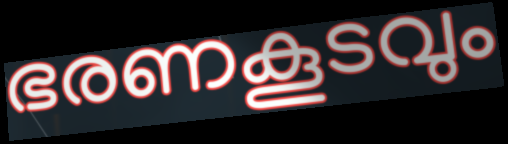
ഭരണകൂടവും